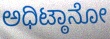
ಅಧಿಟ್ಠಾನೋ